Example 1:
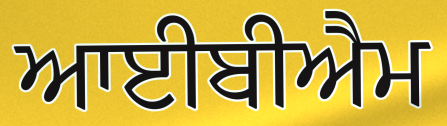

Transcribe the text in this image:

ਆਈਬੀਐਮ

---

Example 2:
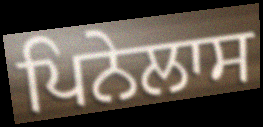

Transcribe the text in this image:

ਪਿਨੇਲਾਸ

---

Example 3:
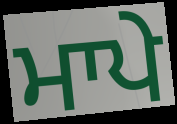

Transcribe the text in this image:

ਮਾਪੇ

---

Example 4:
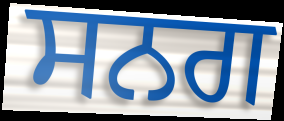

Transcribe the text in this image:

ਸਨਗ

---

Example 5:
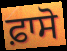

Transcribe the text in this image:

ਫ਼ਾਸੋ